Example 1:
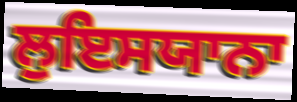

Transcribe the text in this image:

ਲੁਇਸਯਾਨਾ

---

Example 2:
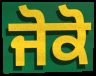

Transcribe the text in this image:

ਜੋਕੋ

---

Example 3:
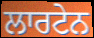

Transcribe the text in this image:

ਲਾਰਟੇਨ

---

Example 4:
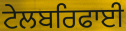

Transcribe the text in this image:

ਟੇਲਬਰਿਫਾਈ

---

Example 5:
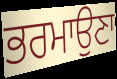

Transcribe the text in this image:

ਭਰਮਾਉਣਾ